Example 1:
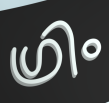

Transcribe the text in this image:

ഗ്രിം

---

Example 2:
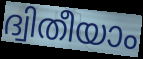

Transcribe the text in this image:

ദ്വിതീയാം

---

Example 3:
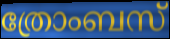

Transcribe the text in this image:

ത്രോംബസ്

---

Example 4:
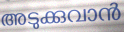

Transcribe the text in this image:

അടുക്കുവാൻ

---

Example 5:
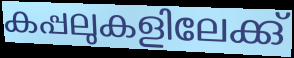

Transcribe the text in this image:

കപ്പലുകളിലേക്കു്